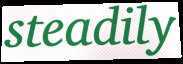
steadily